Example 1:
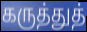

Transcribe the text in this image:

கருத்துத்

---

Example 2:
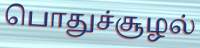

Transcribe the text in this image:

பொதுச்சூழல்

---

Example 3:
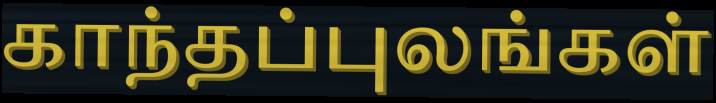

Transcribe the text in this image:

காந்தப்புலங்கள்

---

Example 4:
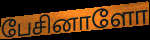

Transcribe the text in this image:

பேசினாளோ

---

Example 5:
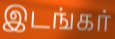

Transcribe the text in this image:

இடங்கர்